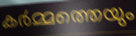
കർമ്മത്തെയും